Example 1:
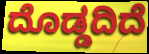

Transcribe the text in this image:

ದೊಡ್ಡದಿದೆ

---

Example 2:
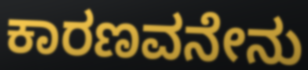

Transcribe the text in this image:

ಕಾರಣವನೇನು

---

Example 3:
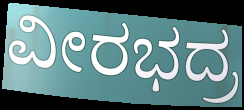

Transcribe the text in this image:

ವೀರಭದ್ರ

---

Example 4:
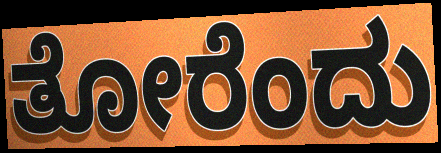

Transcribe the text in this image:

ತೋರೆಂದು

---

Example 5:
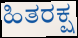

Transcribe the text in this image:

ಹಿತರಕ್ಷ